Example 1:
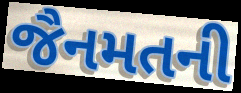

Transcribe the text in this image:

જૈનમતની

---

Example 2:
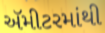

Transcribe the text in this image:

ઍમીટરમાંથી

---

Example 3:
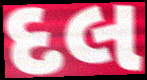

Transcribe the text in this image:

દલ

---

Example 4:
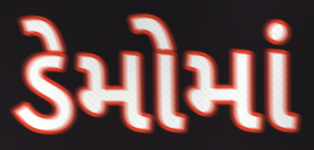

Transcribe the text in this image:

ડેમોમાં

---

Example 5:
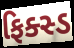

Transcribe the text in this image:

ફિક્સ્ડ